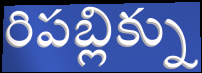
రిపబ్లిక్ను